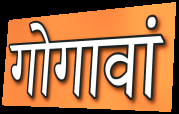
गोगावां